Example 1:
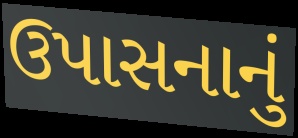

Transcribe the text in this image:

ઉપાસનાનું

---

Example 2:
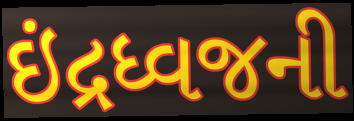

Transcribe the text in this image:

ઇંદ્રધ્વજની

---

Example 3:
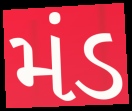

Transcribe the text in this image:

મંડ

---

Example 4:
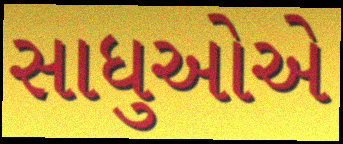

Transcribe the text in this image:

સાધુઓએ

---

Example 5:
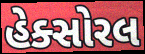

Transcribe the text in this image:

હેક્સોરલ